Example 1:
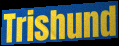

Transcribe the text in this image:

Trishund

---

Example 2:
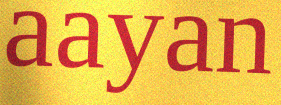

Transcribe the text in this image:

aayan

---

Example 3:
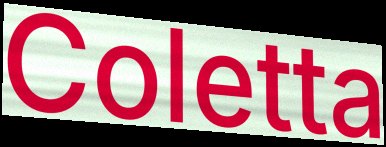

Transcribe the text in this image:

Coletta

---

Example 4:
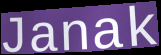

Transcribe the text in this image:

Janak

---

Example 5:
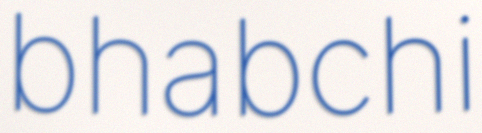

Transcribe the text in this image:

bhabchi